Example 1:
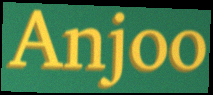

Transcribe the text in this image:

Anjoo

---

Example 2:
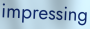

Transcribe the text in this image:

impressing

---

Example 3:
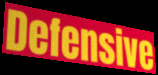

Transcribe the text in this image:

Defensive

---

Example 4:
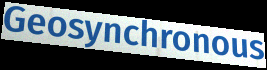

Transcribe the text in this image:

Geosynchronous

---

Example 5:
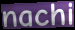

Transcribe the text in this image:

nachi